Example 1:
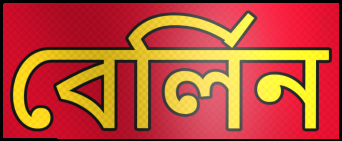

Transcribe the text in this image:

বের্লিন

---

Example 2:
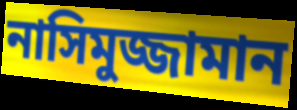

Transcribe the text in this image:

নাসিমুজ্জামান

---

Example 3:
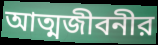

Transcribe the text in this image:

আত্মজীবনীর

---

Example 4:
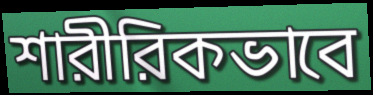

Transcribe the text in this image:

শারীরিকভাবে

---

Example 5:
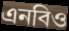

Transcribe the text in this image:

এনবিও